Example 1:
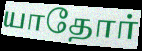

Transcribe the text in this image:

யாதோர்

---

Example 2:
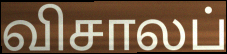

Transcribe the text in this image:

விசாலப்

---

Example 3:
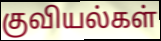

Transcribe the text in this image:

குவியல்கள்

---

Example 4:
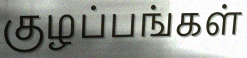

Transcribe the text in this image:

குழப்பங்கள்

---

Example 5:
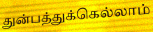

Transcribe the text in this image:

துன்பத்துக்கெல்லாம்